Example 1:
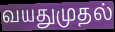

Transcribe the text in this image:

வயதுமுதல்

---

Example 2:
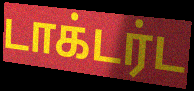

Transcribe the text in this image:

டாக்டர்ட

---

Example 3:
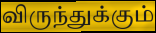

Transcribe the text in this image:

விருந்துக்கும்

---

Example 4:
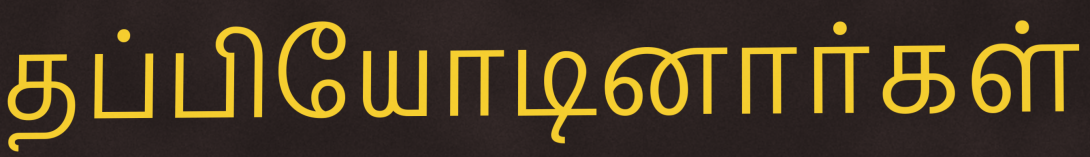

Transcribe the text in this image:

தப்பியோடினார்கள்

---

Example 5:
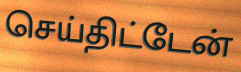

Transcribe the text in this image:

செய்திட்டேன்